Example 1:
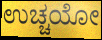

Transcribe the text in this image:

ಉಚ್ಚಯೋ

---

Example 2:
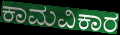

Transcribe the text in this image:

ಕಾಮವಿಕಾರ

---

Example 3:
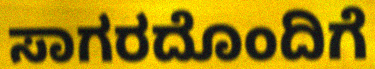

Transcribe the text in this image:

ಸಾಗರದೊಂದಿಗೆ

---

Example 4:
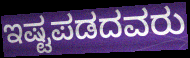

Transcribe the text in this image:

ಇಷ್ಟಪಡದವರು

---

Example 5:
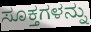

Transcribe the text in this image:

ಸೂಕ್ತಗಳನ್ನು